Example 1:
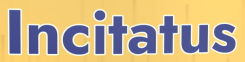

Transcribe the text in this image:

Incitatus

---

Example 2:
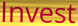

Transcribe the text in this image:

Invest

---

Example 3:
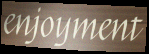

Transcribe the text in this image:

enjoyment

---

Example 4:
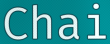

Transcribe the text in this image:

Chai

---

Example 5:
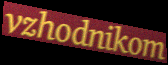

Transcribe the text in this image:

vzhodnikom